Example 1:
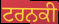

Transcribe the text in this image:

ਟਰਨਕੀ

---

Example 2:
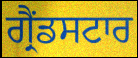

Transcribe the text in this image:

ਗ੍ਰੈਂਡਸਟਾਰ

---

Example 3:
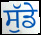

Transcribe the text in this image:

ਸੁੱਡੇ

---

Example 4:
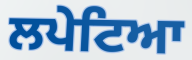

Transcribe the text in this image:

ਲਪੇਟਿਆ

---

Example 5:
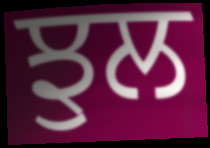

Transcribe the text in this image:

ਝੁਲ